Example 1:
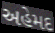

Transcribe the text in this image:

અહેમદ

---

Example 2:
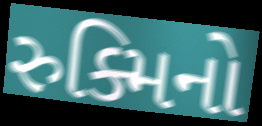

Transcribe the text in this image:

રુક્મિનો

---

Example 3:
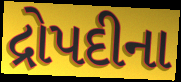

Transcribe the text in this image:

દ્રોપદીના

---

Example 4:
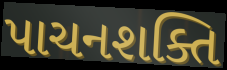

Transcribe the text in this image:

પાચનશક્તિ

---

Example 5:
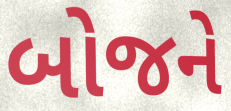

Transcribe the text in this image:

બોજને